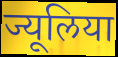
ज्यूलिया